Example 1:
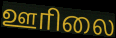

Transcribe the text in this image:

ஊரிலை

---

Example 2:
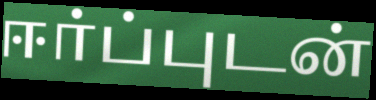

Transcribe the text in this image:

ஈர்ப்புடன்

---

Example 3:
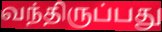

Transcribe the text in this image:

வந்திருப்பது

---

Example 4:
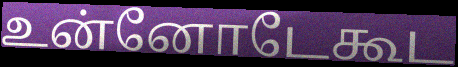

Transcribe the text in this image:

உன்னோடேகூட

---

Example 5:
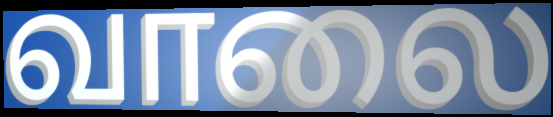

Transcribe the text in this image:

வாலை